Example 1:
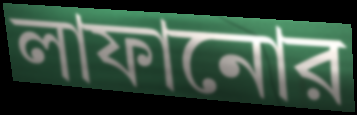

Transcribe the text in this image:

লাফানোর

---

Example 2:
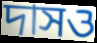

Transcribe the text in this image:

দাসও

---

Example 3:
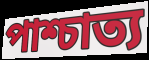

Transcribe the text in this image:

পাশ্চাত্য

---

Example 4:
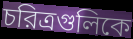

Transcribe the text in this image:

চরিত্রগুলিকে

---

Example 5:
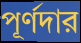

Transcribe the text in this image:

পূর্ণদার